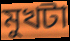
মুখটা